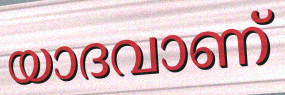
യാദവാണ്